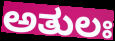
ಅತುಲಃ